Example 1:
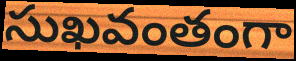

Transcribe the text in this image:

సుఖవంతంగా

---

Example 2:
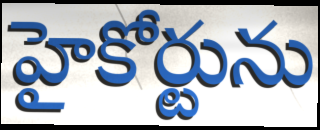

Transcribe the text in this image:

హైకోర్టును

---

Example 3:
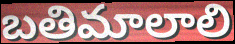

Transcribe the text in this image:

బతిమాలాలి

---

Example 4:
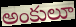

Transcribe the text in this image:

అంకులూ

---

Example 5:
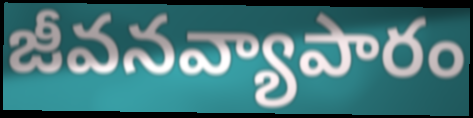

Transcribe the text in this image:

జీవనవ్యాపారం